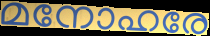
മനോഹരേ